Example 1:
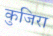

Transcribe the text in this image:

कुजिरा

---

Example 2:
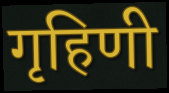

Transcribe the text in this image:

गृहिणी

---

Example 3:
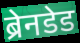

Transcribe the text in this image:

ब्रेनडेड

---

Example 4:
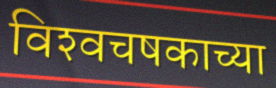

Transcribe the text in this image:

विश्वचषकाच्या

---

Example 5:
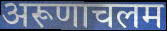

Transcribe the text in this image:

अरूणाचलम